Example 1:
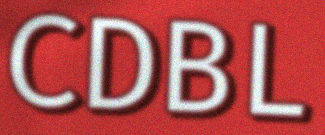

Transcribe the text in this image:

CDBL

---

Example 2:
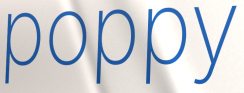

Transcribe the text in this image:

poppy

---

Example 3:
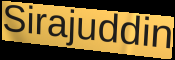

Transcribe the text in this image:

Sirajuddin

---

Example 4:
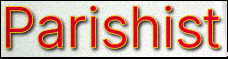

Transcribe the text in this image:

Parishist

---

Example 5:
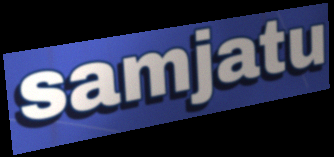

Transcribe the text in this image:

samjatu